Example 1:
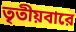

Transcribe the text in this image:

তৃতীয়বারে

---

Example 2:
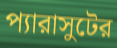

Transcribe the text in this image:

প্যারাসুটের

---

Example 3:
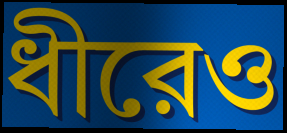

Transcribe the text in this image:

ধীরেও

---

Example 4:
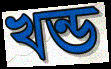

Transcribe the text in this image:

খন্ড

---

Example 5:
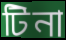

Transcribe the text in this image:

টিনা